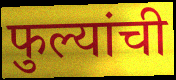
फुल्यांची